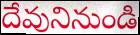
దేవునినుండి